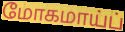
மோகமாய்ப்